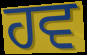
ਹਵ